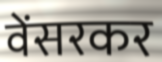
वेंसरकर